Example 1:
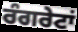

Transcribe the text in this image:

ਰੰਗਰੇਟਾਂ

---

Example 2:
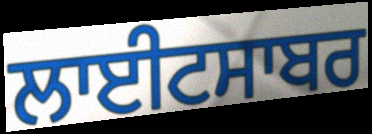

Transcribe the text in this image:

ਲਾਈਟਸਾਬਰ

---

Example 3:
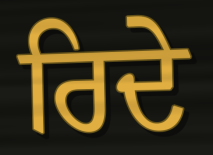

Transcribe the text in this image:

ਰਿਦੇ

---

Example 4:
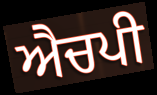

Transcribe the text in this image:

ਐਚਪੀ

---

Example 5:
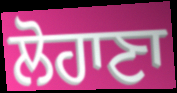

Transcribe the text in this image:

ਲੋਹਾਣਾ